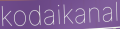
kodaikanal